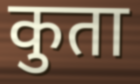
कुता